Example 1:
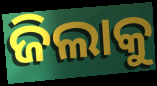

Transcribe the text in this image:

ଜିଲାକୁ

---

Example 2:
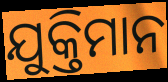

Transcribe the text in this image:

ଯୁକ୍ତିମାନ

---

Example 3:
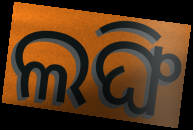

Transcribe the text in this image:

ଲଙ୍ଘି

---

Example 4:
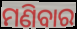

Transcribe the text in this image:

ମଣିବାର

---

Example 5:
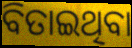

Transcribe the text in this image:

ବିତାଇଥିବା